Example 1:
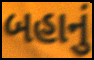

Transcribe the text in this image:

બહાનું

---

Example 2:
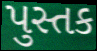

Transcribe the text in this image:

પુસ્તક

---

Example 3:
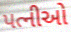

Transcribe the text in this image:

પત્નીઓ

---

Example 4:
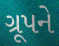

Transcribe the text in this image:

ગ્રૂપને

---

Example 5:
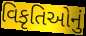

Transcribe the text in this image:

વિકૃતિઓનું